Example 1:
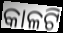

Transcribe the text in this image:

କାଳଟି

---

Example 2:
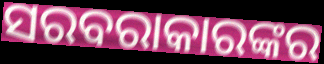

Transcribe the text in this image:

ସରବରାକାରଙ୍କର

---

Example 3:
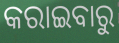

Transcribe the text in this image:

କରାଇବାରୁ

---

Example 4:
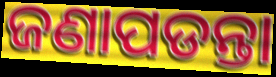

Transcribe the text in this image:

ଜଣାପଡନ୍ତା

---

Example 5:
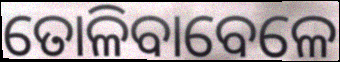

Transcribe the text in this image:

ତୋଳିବାବେଳେ